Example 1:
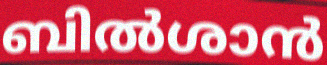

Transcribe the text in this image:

ബിൽശാൻ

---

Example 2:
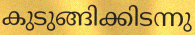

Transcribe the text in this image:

കുടുങ്ങിക്കിടന്നു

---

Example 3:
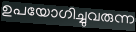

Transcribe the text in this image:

ഉപയോഗിച്ചുവരുന്ന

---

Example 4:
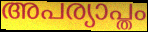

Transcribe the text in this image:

അപര്യാപ്തം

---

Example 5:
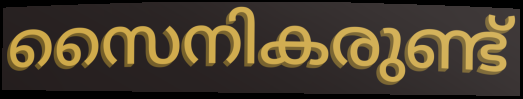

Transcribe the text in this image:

സൈനികരുണ്ട്